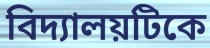
বিদ্যালয়টিকে